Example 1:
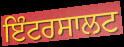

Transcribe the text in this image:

ਇੰਟਰਸਾਲਟ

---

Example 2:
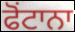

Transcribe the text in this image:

ਫੋਂਟਾਨਾ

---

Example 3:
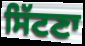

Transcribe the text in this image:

ਸਿੱਟਣਾ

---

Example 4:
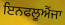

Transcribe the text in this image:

ਇਨਫਲੂਐਂਜਾ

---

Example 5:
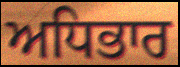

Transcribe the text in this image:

ਅਧਿਭਾਰ